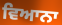
ਵਿਆਨਾ